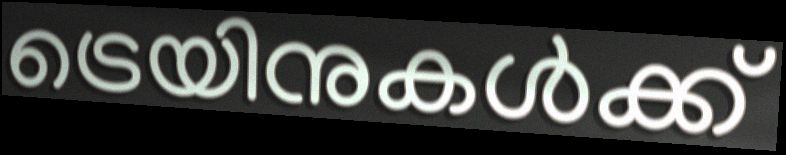
ട്രെയിനുകൾക്ക്